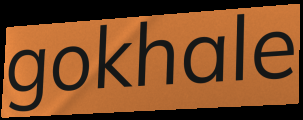
gokhale